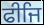
ਫੀਜਿ